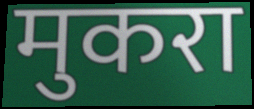
मुकरा